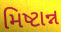
મિષ્ટાન્ન